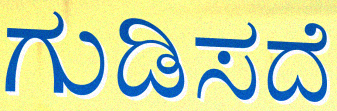
ಗುಡಿಸದೆ